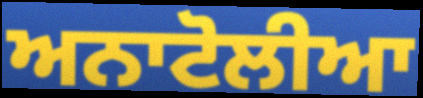
ਅਨਾਟੋਲੀਆ